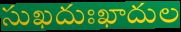
సుఖదుఃఖాదుల